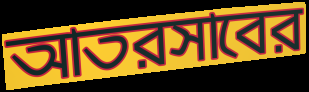
আতরসাবের